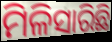
ମିଳିସାରିଛି